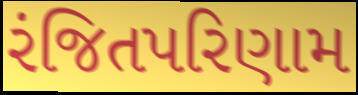
રંજિતપરિણામ